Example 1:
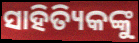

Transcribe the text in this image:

ସାହିତ୍ୟିକଙ୍କୁ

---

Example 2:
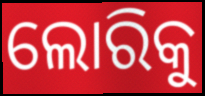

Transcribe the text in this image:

ଲୋରିକୁ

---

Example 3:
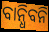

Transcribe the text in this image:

ବାନ୍ଧିବନି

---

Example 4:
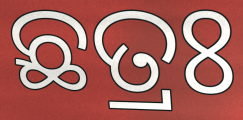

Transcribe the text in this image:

ଛତ୍ରଃ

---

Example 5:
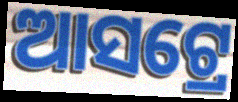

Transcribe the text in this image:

ଆସଟ୍ରେ